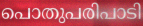
പൊതുപരിപാടി